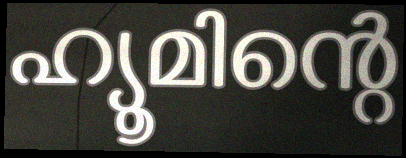
ഹ്യൂമിന്റെ